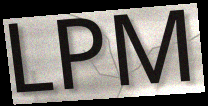
LPM